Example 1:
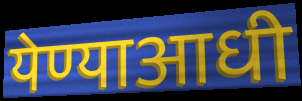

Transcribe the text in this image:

येण्याआधी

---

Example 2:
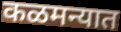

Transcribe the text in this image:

कळमन्यात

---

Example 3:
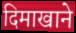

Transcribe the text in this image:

दिमाखाने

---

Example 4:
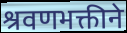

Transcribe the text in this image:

श्रवणभक्तीने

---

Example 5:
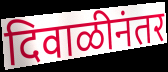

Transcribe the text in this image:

दिवाळीनंतर